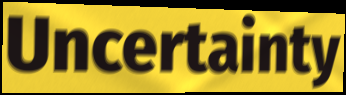
Uncertainty